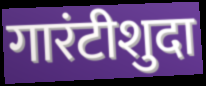
गारंटीशुदा